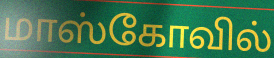
மாஸ்கோவில்